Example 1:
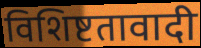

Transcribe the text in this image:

विशिष्टतावादी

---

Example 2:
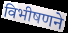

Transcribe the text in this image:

विभीषणने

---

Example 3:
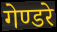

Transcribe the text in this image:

गेण्डरे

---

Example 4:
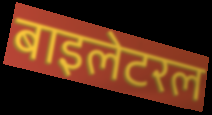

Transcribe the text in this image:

बाइलेटरल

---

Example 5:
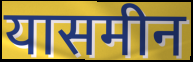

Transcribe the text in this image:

यासमीन